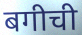
बगीची